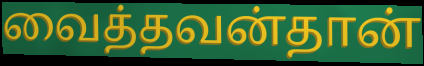
வைத்தவன்தான்